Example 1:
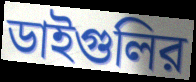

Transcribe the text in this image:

ডাইগুলির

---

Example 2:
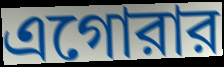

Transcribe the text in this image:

এগোরার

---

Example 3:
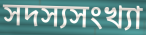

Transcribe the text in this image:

সদস্যসংখ্যা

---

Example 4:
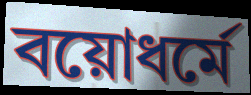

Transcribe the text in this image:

বয়োধর্মে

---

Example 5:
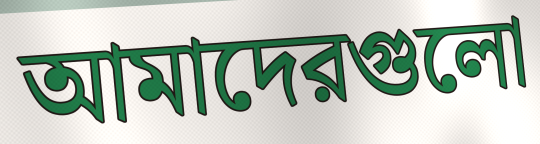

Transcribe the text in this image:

আমাদেরগুলো